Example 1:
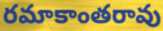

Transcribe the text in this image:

రమాకాంతరావు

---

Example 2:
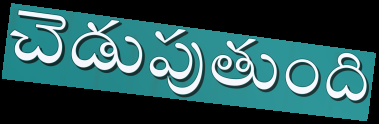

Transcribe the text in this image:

చెడుపుతుంది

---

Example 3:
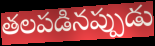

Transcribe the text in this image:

తలపడినప్పుడు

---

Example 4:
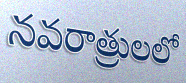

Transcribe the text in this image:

నవరాత్రులలో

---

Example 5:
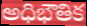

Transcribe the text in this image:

అధిభౌతిక